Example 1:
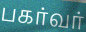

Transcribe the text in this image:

பகர்வர்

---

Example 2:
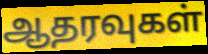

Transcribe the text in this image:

ஆதரவுகள்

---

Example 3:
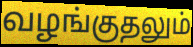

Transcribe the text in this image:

வழங்குதலும்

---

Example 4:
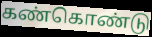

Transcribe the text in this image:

கண்கொண்டு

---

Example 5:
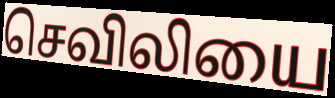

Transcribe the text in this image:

செவிலியை